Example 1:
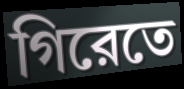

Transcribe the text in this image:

গিরেতে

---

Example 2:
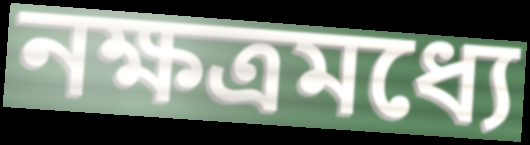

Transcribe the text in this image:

নক্ষত্রমধ্যে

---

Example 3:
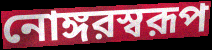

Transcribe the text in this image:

নোঙ্গরস্বরূপ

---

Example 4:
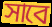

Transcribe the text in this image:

সাবে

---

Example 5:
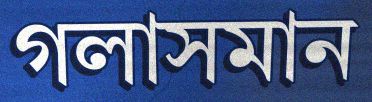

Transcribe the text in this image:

গলাসমান